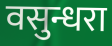
वसुन्धरा